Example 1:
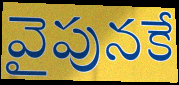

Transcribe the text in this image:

వైపునకే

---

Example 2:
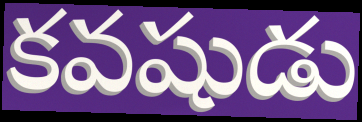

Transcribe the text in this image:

కవషుడు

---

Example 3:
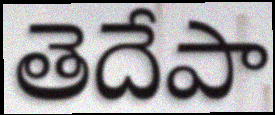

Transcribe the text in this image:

తెదేపా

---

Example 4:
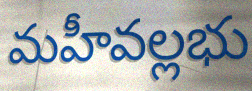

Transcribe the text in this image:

మహీవల్లభు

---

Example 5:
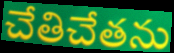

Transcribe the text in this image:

చేతిచేతను